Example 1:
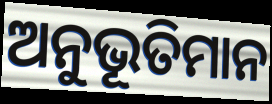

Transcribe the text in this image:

ଅନୁଭୂତିମାନ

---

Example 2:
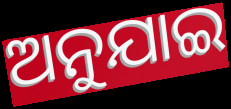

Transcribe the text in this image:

ଅନୁଯାଇ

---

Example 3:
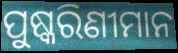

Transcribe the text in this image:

ପୁଷ୍କରିଣୀମାନ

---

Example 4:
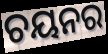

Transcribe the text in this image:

ଚୟନର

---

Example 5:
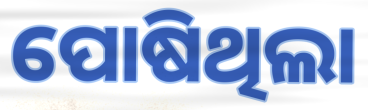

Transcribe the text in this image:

ପୋଷିଥିଲା